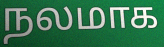
நலமாக